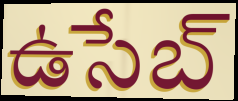
ఉసేబ్